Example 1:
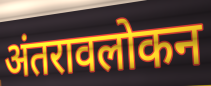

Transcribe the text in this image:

अंतरावलोकन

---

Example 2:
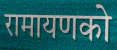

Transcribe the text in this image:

रामायणको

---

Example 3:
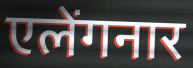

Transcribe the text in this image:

एलेंगनार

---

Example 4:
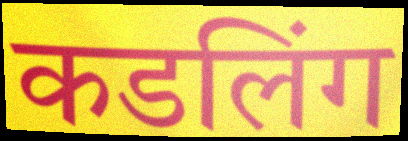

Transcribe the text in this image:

कडलिंग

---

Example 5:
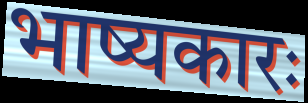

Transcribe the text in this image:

भाष्यकारः